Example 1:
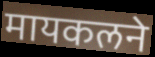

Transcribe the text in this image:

मायकलने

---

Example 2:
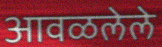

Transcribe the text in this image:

आवळलेले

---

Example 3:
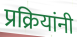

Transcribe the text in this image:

प्रक्रियांनी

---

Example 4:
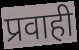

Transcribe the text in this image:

प्रवाही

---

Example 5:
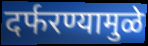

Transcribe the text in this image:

दर्फरण्यामुळे